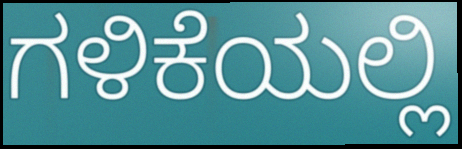
ಗಳಿಕೆಯಲ್ಲಿ